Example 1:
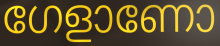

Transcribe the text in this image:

ഗേളാണോ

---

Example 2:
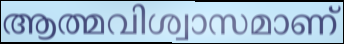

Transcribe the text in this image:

ആത്മവിശ്വാസമാണ്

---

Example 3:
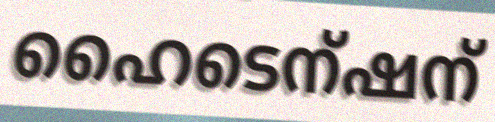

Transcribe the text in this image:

ഹൈടെന്ഷന്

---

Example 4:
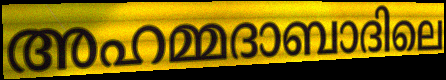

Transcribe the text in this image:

അഹമ്മദാബാദിലെ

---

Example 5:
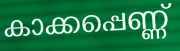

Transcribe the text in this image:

കാക്കപ്പെണ്ണ്